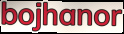
bojhanor